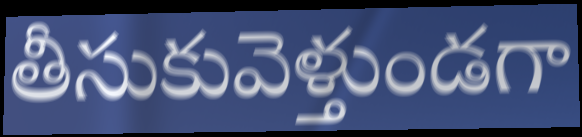
తీసుకువెళ్తుండగా